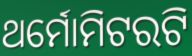
ଥର୍ମୋମିଟରଟି